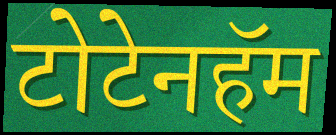
टोटेनहॅम